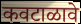
कवटाळावे